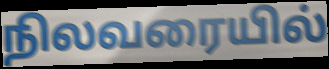
நிலவரையில்